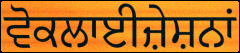
ਵੋਕਲਾਈਜ਼ੇਸ਼ਨਾਂ